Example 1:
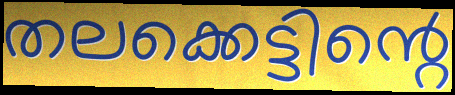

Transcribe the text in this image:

തലക്കെട്ടിന്റെ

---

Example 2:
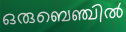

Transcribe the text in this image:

ഒരുബെഞ്ചിൽ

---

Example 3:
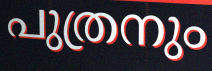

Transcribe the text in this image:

പുത്രനും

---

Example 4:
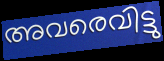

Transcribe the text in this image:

അവരെവിട്ടു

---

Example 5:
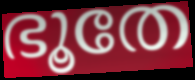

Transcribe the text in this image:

ഭൂതേ